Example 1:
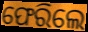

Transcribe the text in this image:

ଫେରିଲେ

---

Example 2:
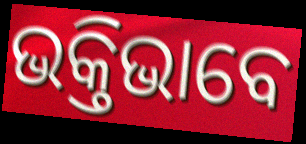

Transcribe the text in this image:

ଭକ୍ତିଭାବେ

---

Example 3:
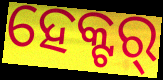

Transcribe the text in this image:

ହେକ୍ଟର୍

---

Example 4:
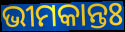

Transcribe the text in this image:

ଭୀମକାନ୍ତଃ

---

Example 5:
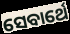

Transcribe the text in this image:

ସେବାର୍ଥେ